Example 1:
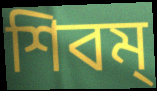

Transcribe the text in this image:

শিবম্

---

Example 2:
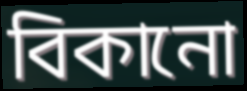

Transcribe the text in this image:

বিকানো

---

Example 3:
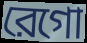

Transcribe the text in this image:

রেগো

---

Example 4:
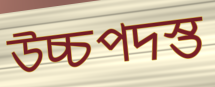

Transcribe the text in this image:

উচ্চপদস্ত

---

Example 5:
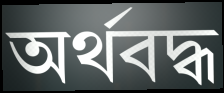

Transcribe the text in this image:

অর্থবদ্ধ